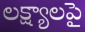
లక్ష్యాలపై